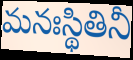
మనఃస్థితినీ